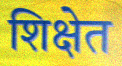
शिक्षेत